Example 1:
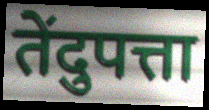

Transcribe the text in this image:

तेंदुपत्ता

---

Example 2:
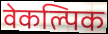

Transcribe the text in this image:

वेकल्पिक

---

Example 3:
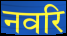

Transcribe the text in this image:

नवरि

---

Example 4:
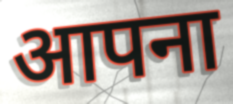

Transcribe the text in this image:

आपना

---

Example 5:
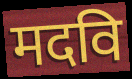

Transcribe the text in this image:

मदवि